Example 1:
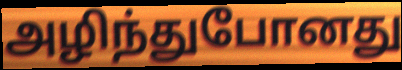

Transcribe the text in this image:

அழிந்துபோனது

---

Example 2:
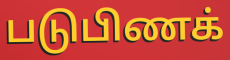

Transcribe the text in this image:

படுபிணக்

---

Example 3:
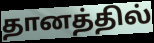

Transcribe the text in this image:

தானத்தில்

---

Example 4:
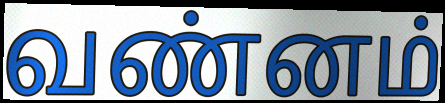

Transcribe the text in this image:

வண்னம்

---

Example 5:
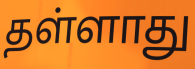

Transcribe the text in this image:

தள்ளாது